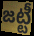
జట్టీ